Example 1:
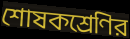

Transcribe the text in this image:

শোষকশ্রেণির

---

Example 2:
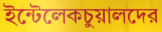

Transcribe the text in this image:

ইন্টেলেকচুয়ালদের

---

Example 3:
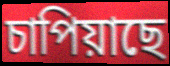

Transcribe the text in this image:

চাপিয়াছে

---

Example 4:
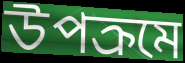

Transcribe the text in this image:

উপক্রমে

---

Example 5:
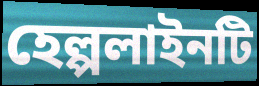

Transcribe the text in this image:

হেল্পলাইনটি